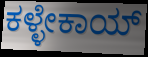
ಕಳ್ಳೇಕಾಯ್